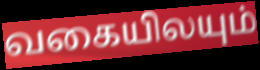
வகையிலயும்